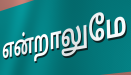
என்றாலுமே